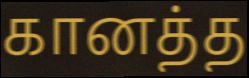
கானத்த